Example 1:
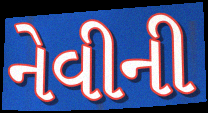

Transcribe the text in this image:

નેવીની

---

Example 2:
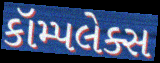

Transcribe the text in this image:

કૉમ્પલેક્સ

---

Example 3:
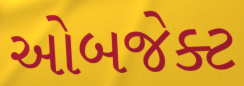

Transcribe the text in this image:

ઓબજેક્ટ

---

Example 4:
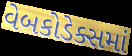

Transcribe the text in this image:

વેબકોડેક્સમાં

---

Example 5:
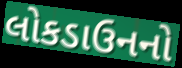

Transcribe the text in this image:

લોકડાઉનનો